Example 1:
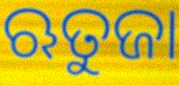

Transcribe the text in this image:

ଋତୁଜା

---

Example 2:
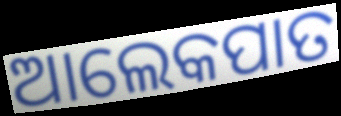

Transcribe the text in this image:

ଆଲେକପାତ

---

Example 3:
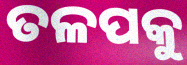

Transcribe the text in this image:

ତଳପକୁ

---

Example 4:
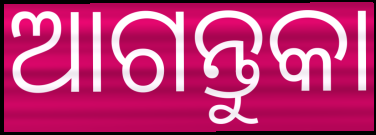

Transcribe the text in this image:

ଆଗନ୍ତୁକା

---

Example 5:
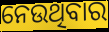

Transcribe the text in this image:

ନେଉଥିବାର